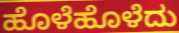
ಹೊಳೆಹೊಳೆದು